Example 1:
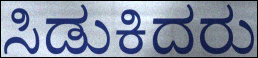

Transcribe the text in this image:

ಸಿಡುಕಿದರು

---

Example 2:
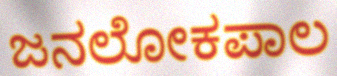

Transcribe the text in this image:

ಜನಲೋಕಪಾಲ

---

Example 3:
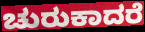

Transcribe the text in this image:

ಚುರುಕಾದರೆ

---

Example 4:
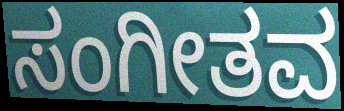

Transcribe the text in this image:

ಸಂಗೀತವ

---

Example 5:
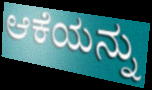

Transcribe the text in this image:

ಆಕೆಯನ್ನು